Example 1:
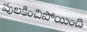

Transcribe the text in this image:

పులకించిపోయింది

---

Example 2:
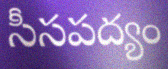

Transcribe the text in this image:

సీసపద్యం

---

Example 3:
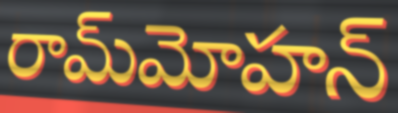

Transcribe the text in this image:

రామ్‌మోహన్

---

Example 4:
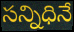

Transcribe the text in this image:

సన్నిధినే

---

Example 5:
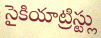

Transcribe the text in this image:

సైకియాట్రిస్ట్లు